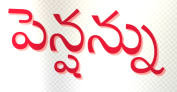
పెన్షన్ను